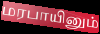
மரபாயினும்